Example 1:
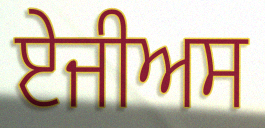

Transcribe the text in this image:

ਏਜੀਅਸ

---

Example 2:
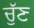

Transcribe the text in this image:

ਚੁੱਣ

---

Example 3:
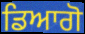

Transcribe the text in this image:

ਡਿਆਗੋ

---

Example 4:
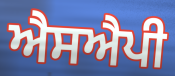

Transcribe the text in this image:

ਐਸਐਪੀ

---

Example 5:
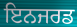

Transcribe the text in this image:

ਇਨਜਰਡ